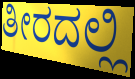
ತೀರದಲ್ಲಿ